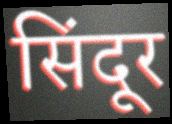
सिंदूर